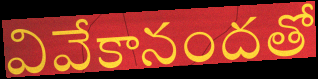
వివేకానందతో